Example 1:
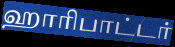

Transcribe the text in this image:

ஹாரிபாட்டர்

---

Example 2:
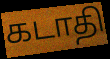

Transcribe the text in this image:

கடாதி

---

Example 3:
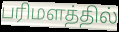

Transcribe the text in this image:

பரிமளத்தில்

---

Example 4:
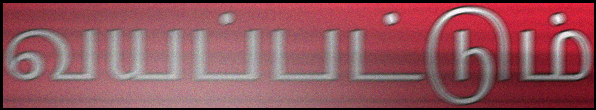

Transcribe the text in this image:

வயப்பட்டும்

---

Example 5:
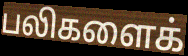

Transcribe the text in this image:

பலிகளைக்